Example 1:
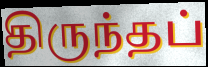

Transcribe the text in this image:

திருந்தப்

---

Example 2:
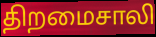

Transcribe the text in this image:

திறமைசாலி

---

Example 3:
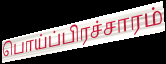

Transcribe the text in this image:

பொய்ப்பிரச்சாரம்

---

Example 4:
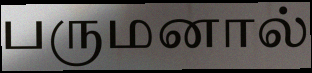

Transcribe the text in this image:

பருமனால்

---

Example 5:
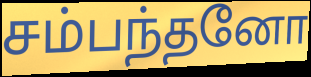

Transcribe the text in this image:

சம்பந்தனோ